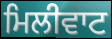
ਮਿਲੀਵਾਟ